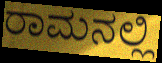
ರಾಮನಲ್ಲಿ